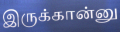
இருக்கான்னு